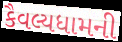
કૈવલ્યધામની